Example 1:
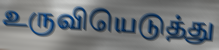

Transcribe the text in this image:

உருவியெடுத்து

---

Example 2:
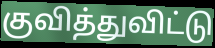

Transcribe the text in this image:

குவித்துவிட்டு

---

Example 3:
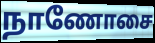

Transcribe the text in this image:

நாணோசை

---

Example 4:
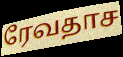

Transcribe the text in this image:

ரேவதாச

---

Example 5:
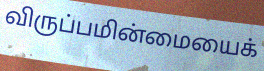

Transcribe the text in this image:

விருப்பமின்மையைக்